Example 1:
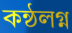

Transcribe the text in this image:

কন্ঠলগ্ন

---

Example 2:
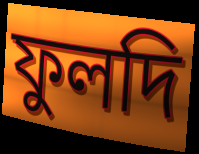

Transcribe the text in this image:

ফুলদি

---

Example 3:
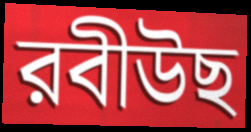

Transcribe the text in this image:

রবীউছ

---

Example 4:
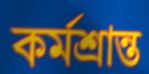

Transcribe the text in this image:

কর্মশ্রান্ত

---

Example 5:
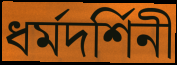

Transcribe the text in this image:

ধর্মদর্শিনী